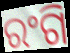
ରଂଗି